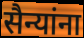
सैन्यांना